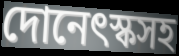
দোনেৎস্কসহ